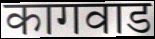
कागवाड